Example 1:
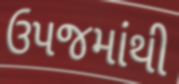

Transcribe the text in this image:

ઉપજમાંથી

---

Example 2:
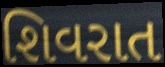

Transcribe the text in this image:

શિવરાત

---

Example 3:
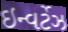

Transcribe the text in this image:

ઇન્વર્ટેઝ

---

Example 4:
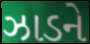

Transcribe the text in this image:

ઝાડને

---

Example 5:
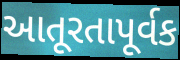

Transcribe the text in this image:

આતૂરતાપૂર્વક